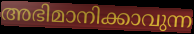
അഭിമാനിക്കാവുന്ന